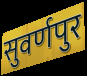
सुवर्णपुर